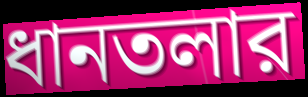
ধানতলার